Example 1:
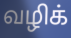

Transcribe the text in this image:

வழிக்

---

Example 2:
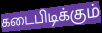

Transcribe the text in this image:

கடைபிடிக்கும்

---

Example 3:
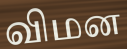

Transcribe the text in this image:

விமன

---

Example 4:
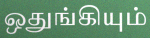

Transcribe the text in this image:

ஒதுங்கியும்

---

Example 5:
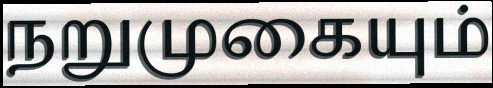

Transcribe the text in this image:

நறுமுகையும்